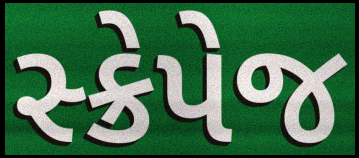
સ્ક્રેપેજ